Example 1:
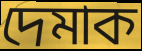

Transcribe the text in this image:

দেমাক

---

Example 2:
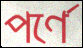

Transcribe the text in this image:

পর্ণে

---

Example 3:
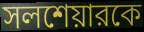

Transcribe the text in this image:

সলশেয়ারকে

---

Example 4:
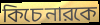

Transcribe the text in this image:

কিচেনারকে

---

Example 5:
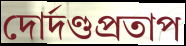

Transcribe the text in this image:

দোর্দণ্ডপ্রতাপ